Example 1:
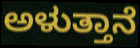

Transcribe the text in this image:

ಅಳುತ್ತಾನೆ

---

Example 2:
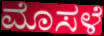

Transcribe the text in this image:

ಮೊಸಳೆ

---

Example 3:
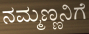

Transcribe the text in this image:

ನಮ್ಮಣ್ಣನಿಗೆ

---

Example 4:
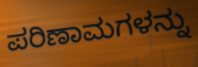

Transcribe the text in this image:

ಪರಿಣಾಮಗಳನ್ನು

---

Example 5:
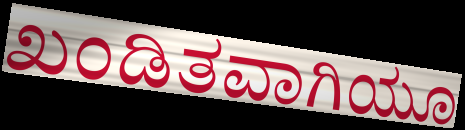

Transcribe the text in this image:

ಖಂಡಿತವಾಗಿಯೂ